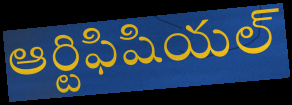
ఆర్టిఫిషియల్